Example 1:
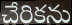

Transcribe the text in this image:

చేరికను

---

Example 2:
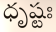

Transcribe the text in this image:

ధృష్టః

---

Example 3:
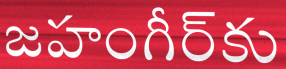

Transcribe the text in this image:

జహంగీర్‌కు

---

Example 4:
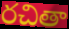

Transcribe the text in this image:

రచితా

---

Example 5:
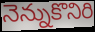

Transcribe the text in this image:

నెన్నుకొనిరి